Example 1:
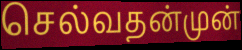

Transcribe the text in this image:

செல்வதன்முன்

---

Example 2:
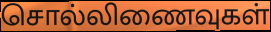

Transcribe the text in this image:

சொல்லிணைவுகள்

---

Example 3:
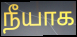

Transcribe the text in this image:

நீயாக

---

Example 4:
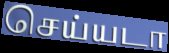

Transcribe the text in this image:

செய்யடா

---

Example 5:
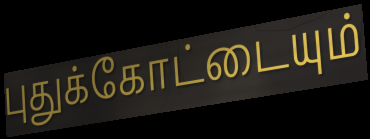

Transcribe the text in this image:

புதுக்கோட்டையும்